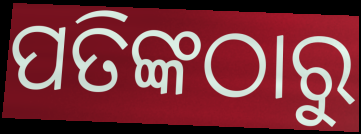
ପତିଙ୍କଠାରୁ